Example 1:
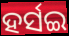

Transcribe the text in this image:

ହର୍ସଇ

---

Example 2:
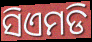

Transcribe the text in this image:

ସିଏମଡି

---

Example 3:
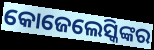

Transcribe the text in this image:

କୋଜେଲେସ୍କିଙ୍କର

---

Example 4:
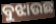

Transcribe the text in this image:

ବୁଝାଉଛ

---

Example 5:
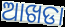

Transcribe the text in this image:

ଆଖଡା